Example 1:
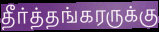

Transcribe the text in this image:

தீர்த்தங்கரருக்கு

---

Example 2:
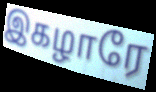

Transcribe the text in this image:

இகழாரே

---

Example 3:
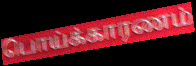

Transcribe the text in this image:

பொய்க்காரணம்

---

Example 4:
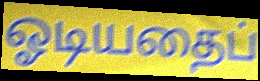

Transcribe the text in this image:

ஓடியதைப்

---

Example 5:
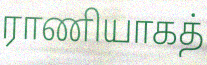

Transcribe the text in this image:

ராணியாகத்